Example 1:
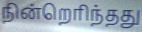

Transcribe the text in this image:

நின்றெரிந்தது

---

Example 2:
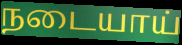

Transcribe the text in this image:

நடையாய்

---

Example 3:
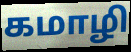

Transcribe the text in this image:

கமாழி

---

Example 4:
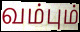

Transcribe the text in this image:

வம்பும்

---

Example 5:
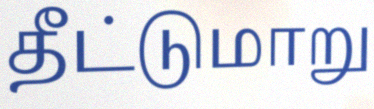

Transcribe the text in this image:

தீட்டுமாறு